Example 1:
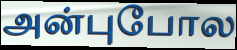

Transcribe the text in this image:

அன்புபோல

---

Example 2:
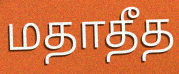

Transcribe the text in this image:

மதாதீத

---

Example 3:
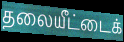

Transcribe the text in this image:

தலையீட்டைக்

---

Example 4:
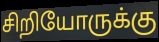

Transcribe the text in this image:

சிறியோருக்கு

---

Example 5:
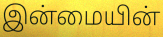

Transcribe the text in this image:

இன்மையின்